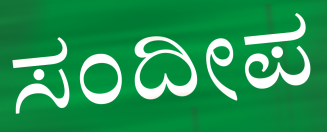
ಸಂದೀಪ